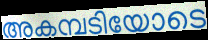
അകമ്പടിയോടെ